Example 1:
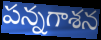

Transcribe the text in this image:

పన్నగాశన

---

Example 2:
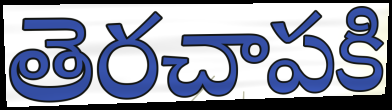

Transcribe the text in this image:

తెరచాపకి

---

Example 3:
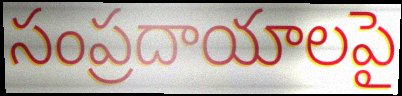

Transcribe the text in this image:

సంప్రదాయాలపై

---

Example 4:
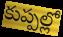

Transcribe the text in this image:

కుప్పల్లో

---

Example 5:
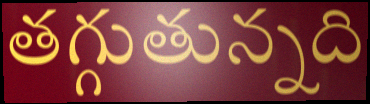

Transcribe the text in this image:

తగ్గుతున్నది